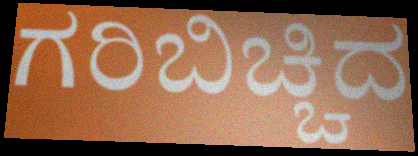
ಗರಿಬಿಚ್ಚಿದ